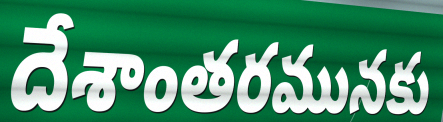
దేశాంతరమునకు